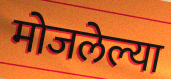
मोजलेल्या